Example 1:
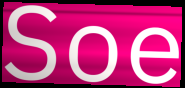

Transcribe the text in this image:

Soe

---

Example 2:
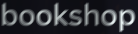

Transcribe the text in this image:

bookshop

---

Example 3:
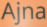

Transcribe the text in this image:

Ajna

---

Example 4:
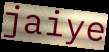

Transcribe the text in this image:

jaiye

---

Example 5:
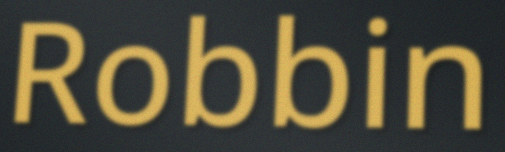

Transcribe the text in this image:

Robbin